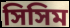
সিসিম